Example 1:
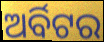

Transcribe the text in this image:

ଅର୍ବିଟର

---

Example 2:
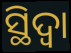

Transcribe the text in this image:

ସ୍ଥିଦ୍ଵା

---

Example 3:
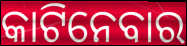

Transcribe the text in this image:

କାଟିନେବାର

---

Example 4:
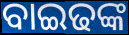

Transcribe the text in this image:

ବାଇଢଙ୍କ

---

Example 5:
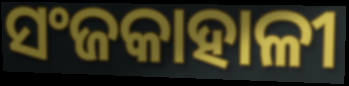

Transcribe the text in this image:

ସଂଜକାହାଳୀ